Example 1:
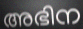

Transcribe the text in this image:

അഭിന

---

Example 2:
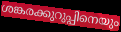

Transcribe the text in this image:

ശങ്കരക്കുറുപ്പിനെയും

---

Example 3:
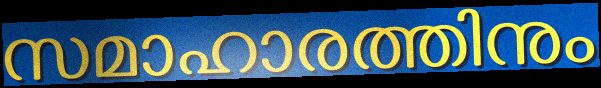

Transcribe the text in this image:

സമാഹാരത്തിനും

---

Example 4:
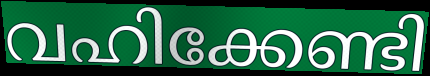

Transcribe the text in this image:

വഹിക്കേണ്ടി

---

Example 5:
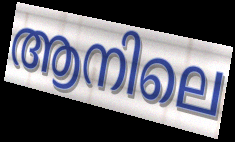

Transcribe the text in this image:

ആനിലെ